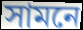
সামনে